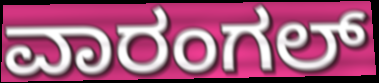
ವಾರಂಗಲ್